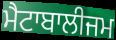
ਮੈਟਾਬਾਲੀਜਮ